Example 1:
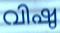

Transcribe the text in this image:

വിഷു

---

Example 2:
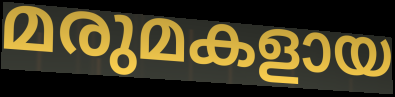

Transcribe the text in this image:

മരുമകളായ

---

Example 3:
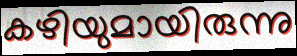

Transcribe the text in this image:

കഴിയുമായിരുന്നു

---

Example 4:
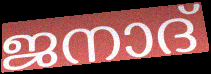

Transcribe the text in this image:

ജനാദ്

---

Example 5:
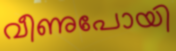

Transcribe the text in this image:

വീണുപോയി